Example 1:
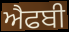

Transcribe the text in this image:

ਐਫਬੀ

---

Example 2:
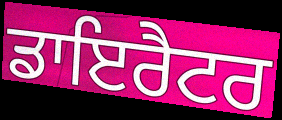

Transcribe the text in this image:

ਡਾਇਰੈਟਰ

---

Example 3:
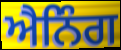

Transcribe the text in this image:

ਐਨਿੰਗ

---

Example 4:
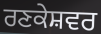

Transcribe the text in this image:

ਰਣਕੇਸ਼ਵਰ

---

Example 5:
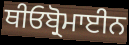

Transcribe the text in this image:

ਥੀਓਬ੍ਰੋਮਾਈਨ